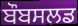
ਬੌਬਸਲਡ